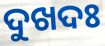
ଦୁଖଦଃ